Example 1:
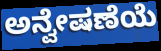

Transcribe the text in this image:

ಅನ್ವೇಷಣೆಯೆ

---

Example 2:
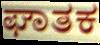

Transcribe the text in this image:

ಘಾತಕ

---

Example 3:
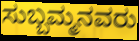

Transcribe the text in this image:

ಸುಬ್ಬಮ್ಮನವರು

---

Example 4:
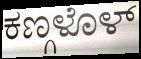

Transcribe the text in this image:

ಕಣ್ಗಳೊಳ್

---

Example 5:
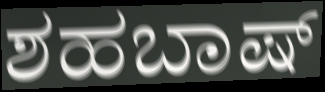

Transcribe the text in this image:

ಶಹಬಾಷ್